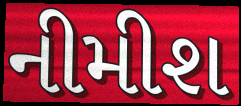
નીમીશ